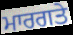
ਮਾਰਗਤੇ